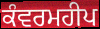
ਕੰਵਰਮਹੀਪ